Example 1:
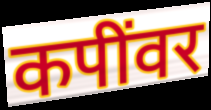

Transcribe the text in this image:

कपींवर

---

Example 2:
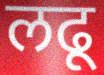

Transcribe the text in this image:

लढू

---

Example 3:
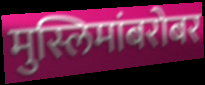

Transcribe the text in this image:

मुस्लिमांबरोबर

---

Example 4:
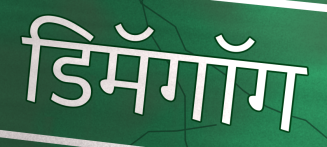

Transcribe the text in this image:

डिमॅगॉग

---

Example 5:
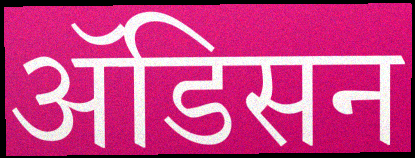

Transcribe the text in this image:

ॲडिसन